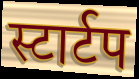
स्टार्टप